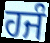
ਹਜੰ